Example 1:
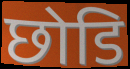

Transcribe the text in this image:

छोडि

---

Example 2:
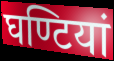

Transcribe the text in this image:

घण्टियां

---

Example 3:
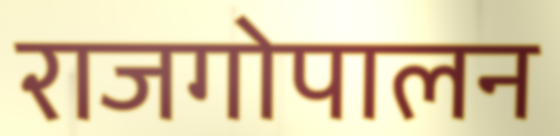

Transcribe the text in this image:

राजगोपालन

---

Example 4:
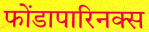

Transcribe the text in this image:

फोंडापारिनक्स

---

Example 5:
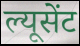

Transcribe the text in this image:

ल्यूसेंट